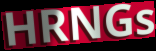
HRNGs